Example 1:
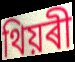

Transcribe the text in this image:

থিয়ৰী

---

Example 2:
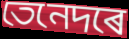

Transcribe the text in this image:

তেনেদৰে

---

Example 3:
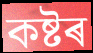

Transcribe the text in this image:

কষ্টৰ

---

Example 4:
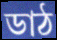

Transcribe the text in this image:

ডাঠ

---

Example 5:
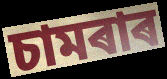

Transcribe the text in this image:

চামৰাৰ